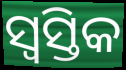
ସ୍ୱସ୍ତିକ